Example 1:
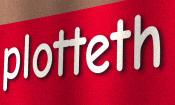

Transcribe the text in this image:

plotteth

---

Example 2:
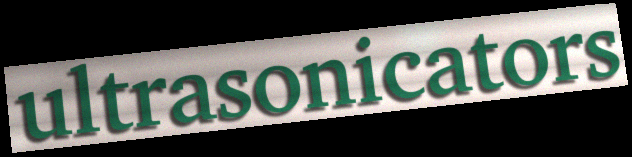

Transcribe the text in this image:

ultrasonicators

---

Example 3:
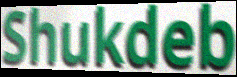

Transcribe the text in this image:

Shukdeb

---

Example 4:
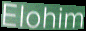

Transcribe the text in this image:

Elohim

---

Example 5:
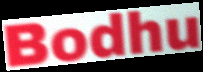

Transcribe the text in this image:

Bodhu